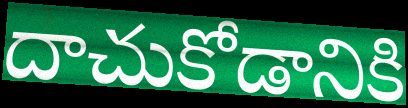
దాచుకోడానికి